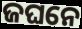
ଜଘନେ